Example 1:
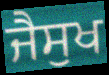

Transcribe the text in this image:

ਜੈਸੁਖ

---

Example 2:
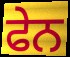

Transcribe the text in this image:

ਫੇਨ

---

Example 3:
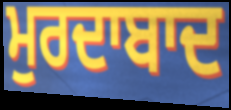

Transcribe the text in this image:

ਮੁਰਦਾਬਾਦ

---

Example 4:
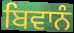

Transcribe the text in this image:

ਬਿਵਾਨੰ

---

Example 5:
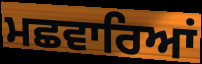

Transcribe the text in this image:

ਮਛਵਾਰਿਆਂ